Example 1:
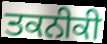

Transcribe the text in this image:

ਤਕਨੀਕੀ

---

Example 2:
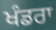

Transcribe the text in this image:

ਖੰਡਰਾ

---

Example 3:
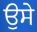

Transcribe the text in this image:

ਉਸੇ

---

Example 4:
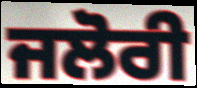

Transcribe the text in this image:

ਜਲੋਰੀ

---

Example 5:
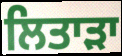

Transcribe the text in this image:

ਲਿਤਾੜਾ